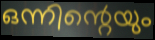
ഒന്നിന്റെയും